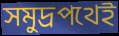
সমুদ্রপথেই